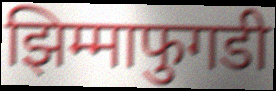
झिम्माफुगडी